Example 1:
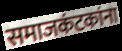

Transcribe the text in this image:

समाजकंटकांना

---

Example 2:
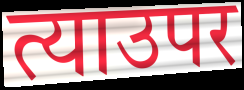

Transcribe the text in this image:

त्याउपर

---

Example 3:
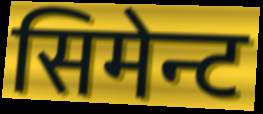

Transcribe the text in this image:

सिमेन्ट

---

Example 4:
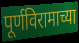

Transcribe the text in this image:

पूर्णविरामाच्या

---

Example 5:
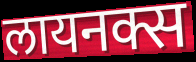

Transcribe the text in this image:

लायनक्स